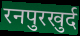
रनपुरखुर्द